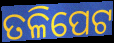
ତଳିପେଟ